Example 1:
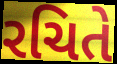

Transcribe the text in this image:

રચિતે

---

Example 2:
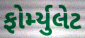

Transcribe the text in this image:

ફોર્મ્યુલેટ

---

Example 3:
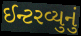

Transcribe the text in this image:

ઈન્ટરવ્યુનું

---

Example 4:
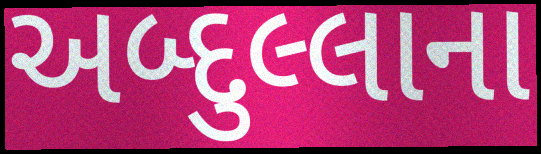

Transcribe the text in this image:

અબ્દુલ્લાના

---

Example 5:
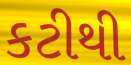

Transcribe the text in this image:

કટીથી